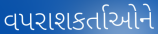
વપરાશકર્તાઓને